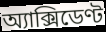
অ্যাক্সিডেণ্ট